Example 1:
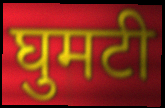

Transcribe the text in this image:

घुमटी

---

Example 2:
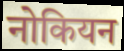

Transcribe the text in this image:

नोकियन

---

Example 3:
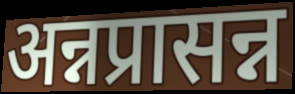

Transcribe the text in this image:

अन्नप्रासन्न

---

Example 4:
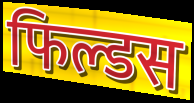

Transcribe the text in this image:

फिल्डस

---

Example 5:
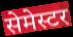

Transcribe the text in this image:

सेमेस्टर